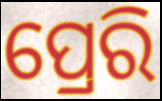
ପ୍ରେରି